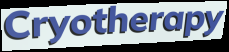
Cryotherapy